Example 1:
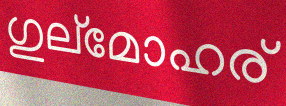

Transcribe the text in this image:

ഗുല്മോഹര്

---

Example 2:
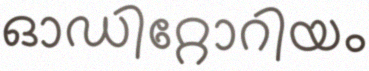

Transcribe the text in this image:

ഓഡിറ്റോറിയം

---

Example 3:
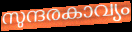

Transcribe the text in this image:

സുന്ദരകാവ്യം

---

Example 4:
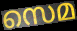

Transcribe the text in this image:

സെമ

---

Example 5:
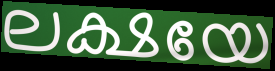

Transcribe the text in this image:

ലക്ഷയേ